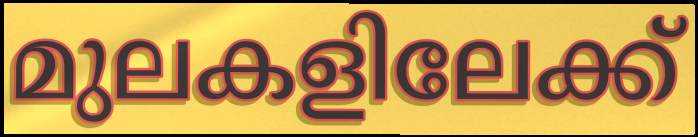
മുലകളിലേക്ക്